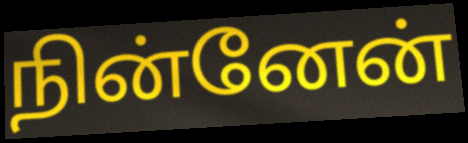
நின்னேன்